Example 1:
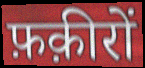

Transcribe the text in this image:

फ़क़ीरों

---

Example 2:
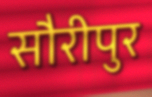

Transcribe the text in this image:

सौरीपुर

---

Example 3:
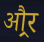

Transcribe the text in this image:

औ्रर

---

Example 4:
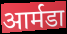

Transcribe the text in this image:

आर्मडा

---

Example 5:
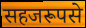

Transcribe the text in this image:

सहजरूपसे